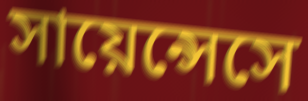
সায়েন্সেসে